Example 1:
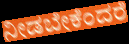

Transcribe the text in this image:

ನೀಡಬೇಕೆಂದರೆ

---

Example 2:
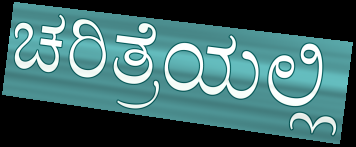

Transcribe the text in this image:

ಚರಿತ್ರೆಯಲ್ಲಿ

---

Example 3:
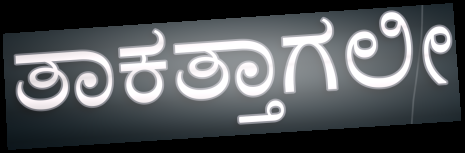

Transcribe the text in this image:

ತಾಕತ್ತಾಗಲೀ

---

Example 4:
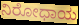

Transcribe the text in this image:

ನಿರೋಧಾಯ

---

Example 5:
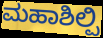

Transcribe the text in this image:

ಮಹಾಶಿಲ್ಪಿ